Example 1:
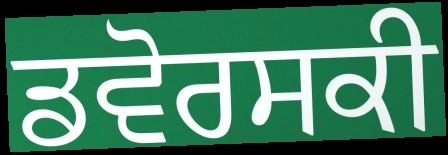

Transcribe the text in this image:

ਡਵੋਰਸਕੀ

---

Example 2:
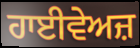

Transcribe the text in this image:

ਹਾਈਵੇਅਜ਼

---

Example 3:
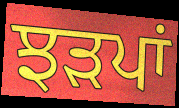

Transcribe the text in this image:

ਝੜਪਾਂ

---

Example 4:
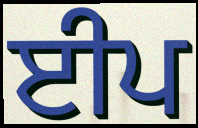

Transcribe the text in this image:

ਈਪ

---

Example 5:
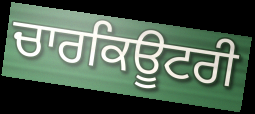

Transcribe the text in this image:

ਚਾਰਕਿਊਟਰੀ